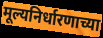
मूल्यनिर्धारणाच्या